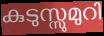
കുടുസ്സുമുറി